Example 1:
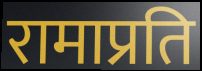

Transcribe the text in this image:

रामाप्रति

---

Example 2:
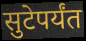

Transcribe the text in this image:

सुटेपर्यंत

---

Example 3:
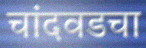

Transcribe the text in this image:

चांदवडचा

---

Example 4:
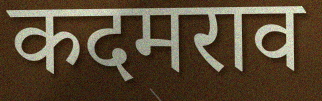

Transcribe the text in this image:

कदमराव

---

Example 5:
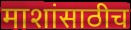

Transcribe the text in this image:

माशांसाठीच